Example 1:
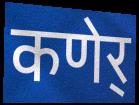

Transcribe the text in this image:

कणेर्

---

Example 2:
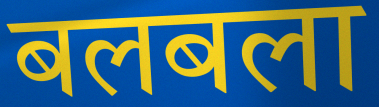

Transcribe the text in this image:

बलबला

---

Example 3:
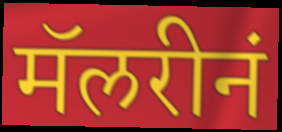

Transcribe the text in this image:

मॅलरीनं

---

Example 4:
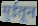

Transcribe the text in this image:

सुईतून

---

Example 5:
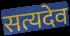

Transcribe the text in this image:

सत्यदेव